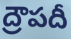
ద్రౌపదీ